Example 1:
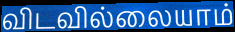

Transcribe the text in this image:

விடவில்லையாம்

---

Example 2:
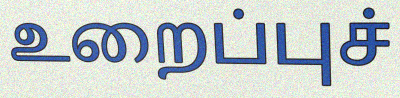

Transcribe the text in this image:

உறைப்புச்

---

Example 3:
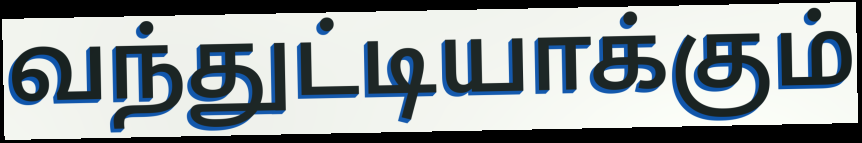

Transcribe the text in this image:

வந்துட்டியாக்கும்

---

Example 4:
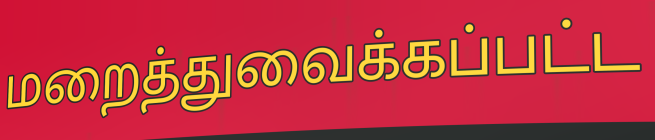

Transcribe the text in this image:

மறைத்துவைக்கப்பட்ட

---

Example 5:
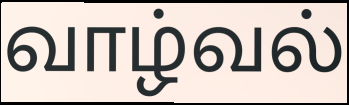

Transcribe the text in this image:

வாழ்வல்